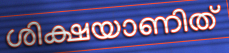
ശിക്ഷയാണിത്